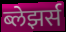
ब्लेझर्स